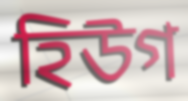
হিউগ